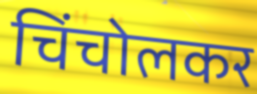
चिंचोलकर